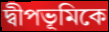
দ্বীপভূমিকে